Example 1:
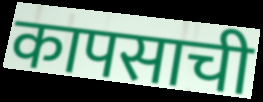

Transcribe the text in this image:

कापसाची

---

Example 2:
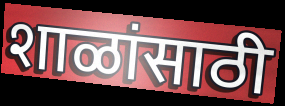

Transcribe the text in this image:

शाळांसाठी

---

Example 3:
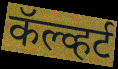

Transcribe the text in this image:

कॅल्व्हर्ट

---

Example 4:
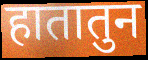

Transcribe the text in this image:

हातातुन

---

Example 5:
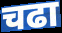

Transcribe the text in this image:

चढा